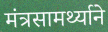
मंत्रसामर्थ्याने